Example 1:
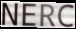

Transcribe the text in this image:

NERC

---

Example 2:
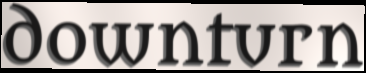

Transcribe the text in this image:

downturn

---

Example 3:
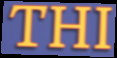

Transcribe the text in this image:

THI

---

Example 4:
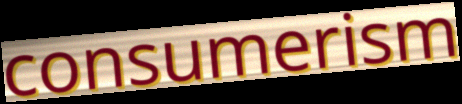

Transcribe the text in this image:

consumerism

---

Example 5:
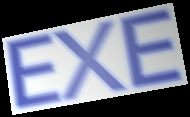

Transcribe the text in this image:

EXE